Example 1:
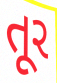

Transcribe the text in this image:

તૂર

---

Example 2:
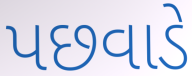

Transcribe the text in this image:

પછવાડે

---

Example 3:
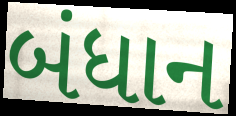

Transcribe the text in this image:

બંધાન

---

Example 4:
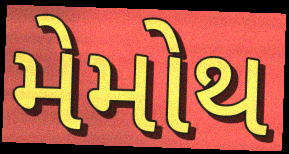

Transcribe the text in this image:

મેમોથ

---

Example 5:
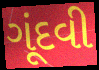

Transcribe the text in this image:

ગૂંદવી